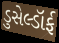
ડુસેલ્ડૉર્ફ